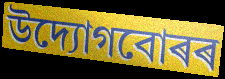
উদ্যোগবোৰৰ